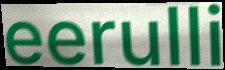
eerulli